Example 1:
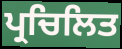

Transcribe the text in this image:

ਪ੍ਰਚਿਲਿਤ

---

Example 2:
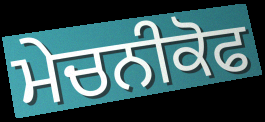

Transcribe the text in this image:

ਮੇਚਨੀਕੋਫ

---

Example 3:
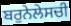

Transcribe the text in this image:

ਬਰੁਨੇਲੇਸਚੀ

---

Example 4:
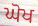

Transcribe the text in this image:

ਘੋਖ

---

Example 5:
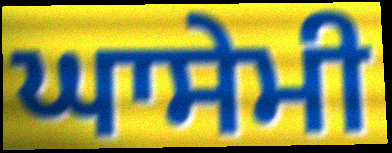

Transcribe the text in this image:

ਘਾਸੇਮੀ